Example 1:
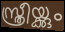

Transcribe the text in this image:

സ്ത്രീയ്ക്കും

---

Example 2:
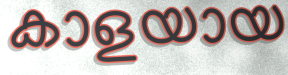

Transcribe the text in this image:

കാളയായ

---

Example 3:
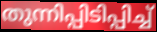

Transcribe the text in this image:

തുന്നിപ്പിടിപ്പിച്ച്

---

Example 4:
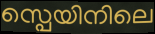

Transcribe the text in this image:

സ്പെയിനിലെ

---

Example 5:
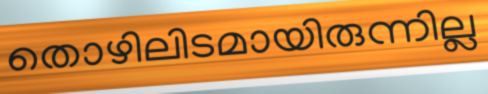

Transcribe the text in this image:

തൊഴിലിടമായിരുന്നില്ല